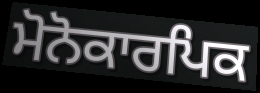
ਮੋਨੋਕਾਰਪਿਕ